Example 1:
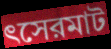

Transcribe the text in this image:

ৎসেরমাট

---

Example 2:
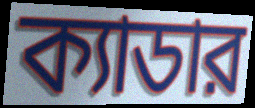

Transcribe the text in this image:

ক্যাডার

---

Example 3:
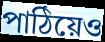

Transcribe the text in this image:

পাঠিয়েও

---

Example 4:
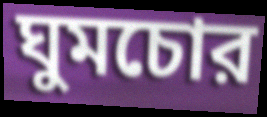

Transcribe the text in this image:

ঘুমচোর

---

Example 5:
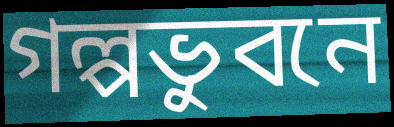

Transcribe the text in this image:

গল্পভুবনে